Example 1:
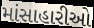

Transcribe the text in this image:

માંસાહારીઓ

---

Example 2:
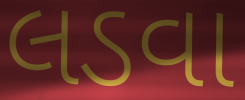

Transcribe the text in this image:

લડવા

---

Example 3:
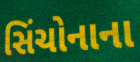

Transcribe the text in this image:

સિંચોનાના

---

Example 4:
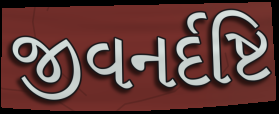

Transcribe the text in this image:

જીવનર્દષ્ટિ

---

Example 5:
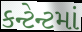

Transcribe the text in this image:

કન્ટેન્ટમાં